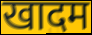
खादम